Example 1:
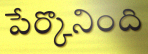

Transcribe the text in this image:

పేర్కొనింది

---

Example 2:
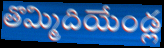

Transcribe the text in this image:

తొమ్మిదియేండ్ల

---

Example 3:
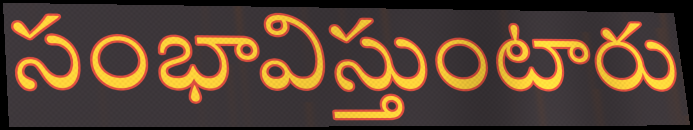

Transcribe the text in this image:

సంభావిస్తుంటారు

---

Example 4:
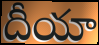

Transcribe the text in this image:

దీయా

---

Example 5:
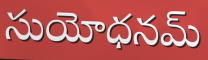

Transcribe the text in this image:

సుయోధనమ్